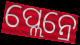
ପ୍ଲେନ୍ରେ